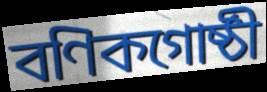
বণিকগোষ্ঠী